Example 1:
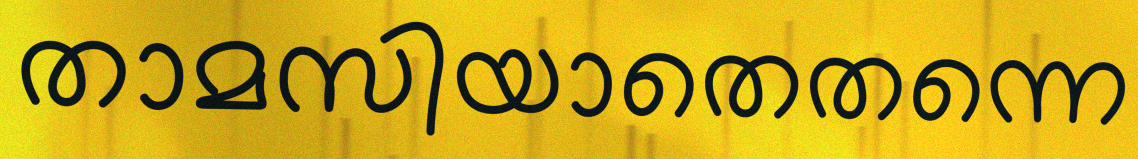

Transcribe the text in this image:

താമസിയാതെതന്നെ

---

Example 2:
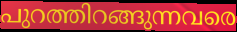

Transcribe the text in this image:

പുറത്തിറങ്ങുന്നവരെ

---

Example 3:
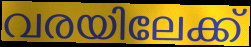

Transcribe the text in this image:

വരയിലേക്ക്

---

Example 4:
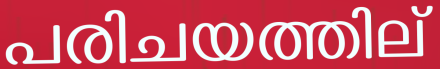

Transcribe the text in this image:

പരിചയത്തില്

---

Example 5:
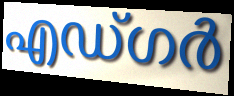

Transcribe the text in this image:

എഡ്ഗർ